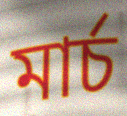
মাৰ্চ